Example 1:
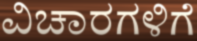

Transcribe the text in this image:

ವಿಚಾರಗಳಿಗೆ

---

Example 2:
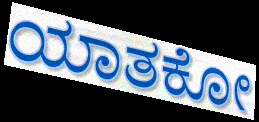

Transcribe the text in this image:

ಯಾತಕೋ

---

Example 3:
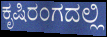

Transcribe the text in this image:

ಕೃಷಿರಂಗದಲ್ಲಿ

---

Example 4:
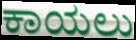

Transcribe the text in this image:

ಕಾಯಲು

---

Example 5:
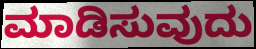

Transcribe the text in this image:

ಮಾಡಿಸುವುದು